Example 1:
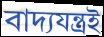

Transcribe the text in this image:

বাদ্যযন্ত্ৰই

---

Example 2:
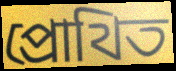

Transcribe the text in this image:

প্ৰোথিত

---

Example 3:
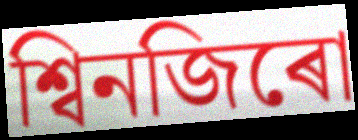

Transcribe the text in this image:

শ্বিনজিৰো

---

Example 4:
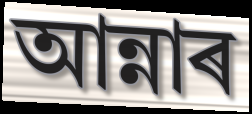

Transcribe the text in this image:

আন্নাৰ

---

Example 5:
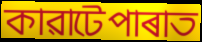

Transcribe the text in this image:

কাৱাটেপাৰাত